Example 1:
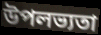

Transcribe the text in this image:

উপলভ্যতা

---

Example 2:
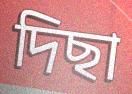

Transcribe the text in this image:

দিছা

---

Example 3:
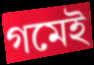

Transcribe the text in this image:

গমেই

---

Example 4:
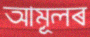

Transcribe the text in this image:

আমূলৰ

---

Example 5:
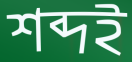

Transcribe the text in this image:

শব্দই